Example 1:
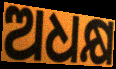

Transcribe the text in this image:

ଅଧକ୍ଷ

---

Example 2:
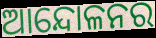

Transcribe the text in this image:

ଆନ୍ଦୋଳନର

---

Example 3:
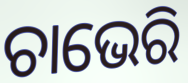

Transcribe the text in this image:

ଚାଭେରି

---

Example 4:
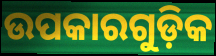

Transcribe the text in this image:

ଉପକାରଗୁଡ଼ିକ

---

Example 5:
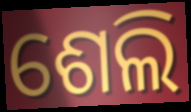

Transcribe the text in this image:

ଶେଲି